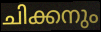
ചിക്കനും